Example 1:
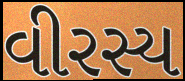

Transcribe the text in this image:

વીરસ્ય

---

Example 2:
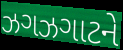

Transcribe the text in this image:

ઝગઝગાટને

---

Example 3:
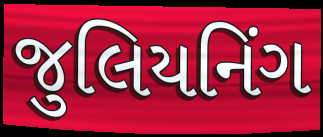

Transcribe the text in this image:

જુલિયનિંગ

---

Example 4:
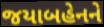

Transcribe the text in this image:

જયાબહેનને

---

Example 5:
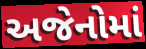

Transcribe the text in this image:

અજેનોમાં